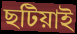
ছটিয়াই